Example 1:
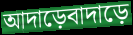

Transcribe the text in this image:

আদাড়েবাদাড়ে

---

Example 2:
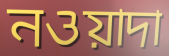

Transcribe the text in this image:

নওয়াদা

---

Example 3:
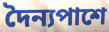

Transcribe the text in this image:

দৈন্যপাশে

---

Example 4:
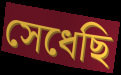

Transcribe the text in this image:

সেধেছি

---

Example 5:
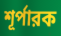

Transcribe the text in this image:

শূর্পারক